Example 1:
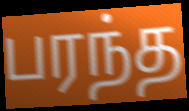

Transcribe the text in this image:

பரந்த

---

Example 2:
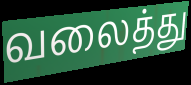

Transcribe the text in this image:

வலைத்து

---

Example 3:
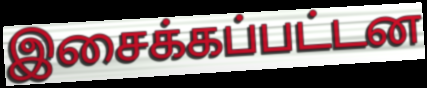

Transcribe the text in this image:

இசைக்கப்பட்டன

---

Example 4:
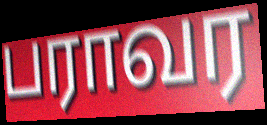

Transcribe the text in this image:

பராவர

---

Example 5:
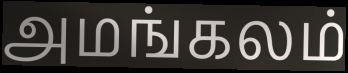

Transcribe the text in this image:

அமங்கலம்